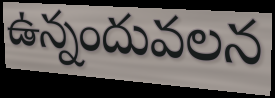
ఉన్నందువలన